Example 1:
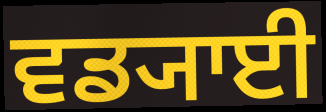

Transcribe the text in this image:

ਵਡ੍ਯਾਈ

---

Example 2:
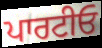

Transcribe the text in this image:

ਪਾਰਟੀਓ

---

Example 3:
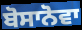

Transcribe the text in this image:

ਬੋਸਾਨੋਵਾ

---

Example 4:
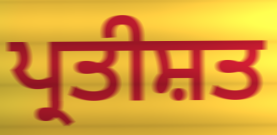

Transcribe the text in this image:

ਪ੍ਰਤੀਸ਼ਤ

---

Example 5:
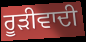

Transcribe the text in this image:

ਰੂੜੀਵਾਦੀ